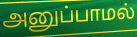
அனுப்பாமல்